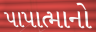
પાપાત્માનો